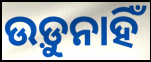
ଉଡ଼ୁନାହିଁ